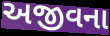
અજીવના